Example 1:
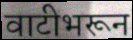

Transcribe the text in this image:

वाटीभरून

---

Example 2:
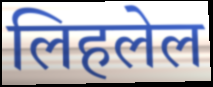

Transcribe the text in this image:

लिहलेल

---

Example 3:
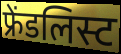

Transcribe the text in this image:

फ्रेंडलिस्ट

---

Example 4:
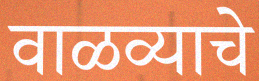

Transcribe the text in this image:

वाळव्याचे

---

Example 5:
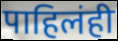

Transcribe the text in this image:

पाहिलंही